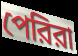
পেরিরা